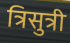
त्रिसुत्री